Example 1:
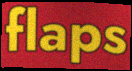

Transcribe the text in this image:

flaps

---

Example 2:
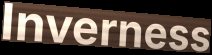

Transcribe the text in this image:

Inverness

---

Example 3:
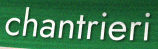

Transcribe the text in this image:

chantrieri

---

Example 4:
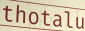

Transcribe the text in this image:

thotalu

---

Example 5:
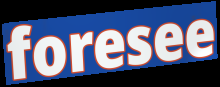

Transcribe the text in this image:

foresee